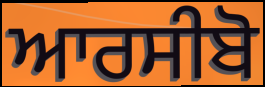
ਆਰਸੀਬੋ